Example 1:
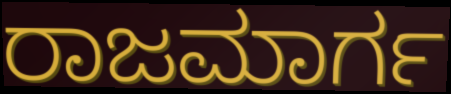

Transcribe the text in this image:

ರಾಜಮಾರ್ಗ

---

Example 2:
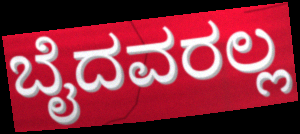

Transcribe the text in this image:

ಬೈದವರಲ್ಲ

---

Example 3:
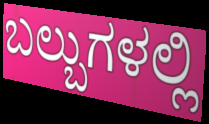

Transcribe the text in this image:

ಬಲ್ಬುಗಳಲ್ಲಿ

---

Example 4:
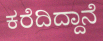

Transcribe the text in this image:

ಕರೆದಿದ್ದಾನೆ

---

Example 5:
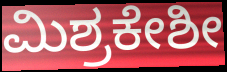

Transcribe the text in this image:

ಮಿಶ್ರಕೇಶೀ